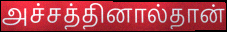
அச்சத்தினால்தான்